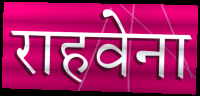
राहवेना